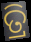
ତ୍ରି